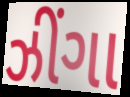
ઝીંગા